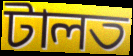
টালত